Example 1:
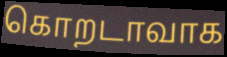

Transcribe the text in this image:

கொறடாவாக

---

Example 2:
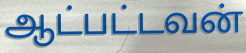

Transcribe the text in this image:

ஆட்பட்டவன்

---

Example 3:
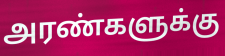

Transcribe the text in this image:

அரண்களுக்கு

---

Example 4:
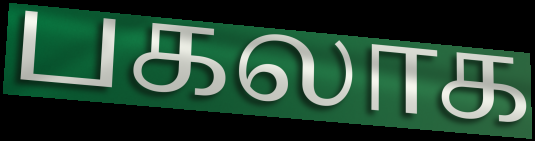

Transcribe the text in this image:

பகலாக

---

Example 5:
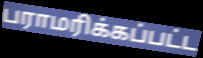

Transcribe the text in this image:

பராமரிக்கப்பட்ட